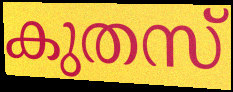
കുതസ്